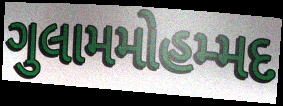
ગુલામમોહમ્મદ